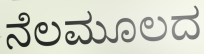
ನೆಲಮೂಲದ